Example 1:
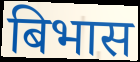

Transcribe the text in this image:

बिभास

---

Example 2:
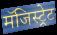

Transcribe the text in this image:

मॅजिस्ट्रेट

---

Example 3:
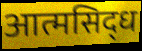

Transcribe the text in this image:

आत्मसिद्ध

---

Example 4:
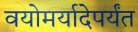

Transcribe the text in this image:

वयोमर्यादेपर्यंत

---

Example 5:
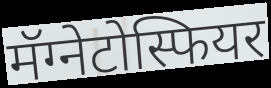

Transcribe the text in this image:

मॅग्नेटोस्फियर